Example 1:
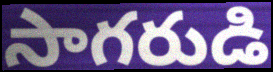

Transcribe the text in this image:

సాగరుడి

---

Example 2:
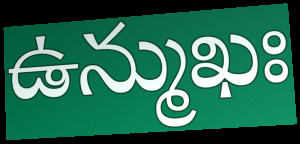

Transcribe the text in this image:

ఉన్ముఖః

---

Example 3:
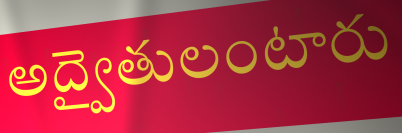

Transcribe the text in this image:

అద్వైతులంటారు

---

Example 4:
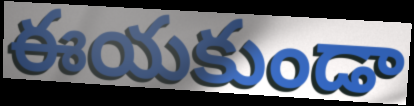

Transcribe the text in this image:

ఈయకుండా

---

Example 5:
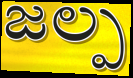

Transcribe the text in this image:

జల్ప